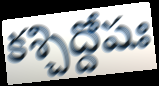
కశ్చిద్దోషః